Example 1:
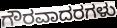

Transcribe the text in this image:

ಗೌರವಾದರಗಳು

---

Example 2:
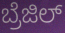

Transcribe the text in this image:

ಬ್ರೆಜಿಲ್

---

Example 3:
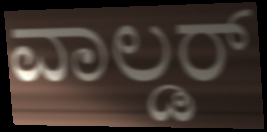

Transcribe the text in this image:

ವಾಲ್ಡರ್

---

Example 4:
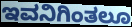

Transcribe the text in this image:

ಇವನಿಗಿಂತಲೂ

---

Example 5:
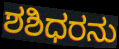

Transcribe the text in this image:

ಶಶಿಧರನು